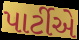
પાર્ટીએ